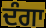
ਦੰਗਾ